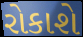
રોકાશે